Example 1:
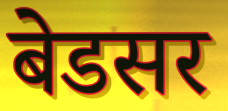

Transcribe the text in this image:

बेडसर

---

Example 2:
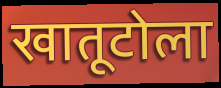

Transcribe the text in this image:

खातूटोला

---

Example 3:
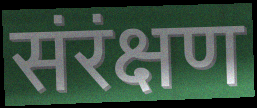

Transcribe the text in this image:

संरंक्षण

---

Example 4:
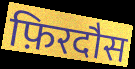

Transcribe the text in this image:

फ़िरदौस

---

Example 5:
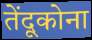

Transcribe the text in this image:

तेंदूकोना